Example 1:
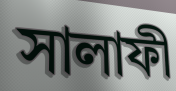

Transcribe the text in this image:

সালাফী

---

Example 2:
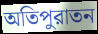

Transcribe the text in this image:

অতিপুরাতন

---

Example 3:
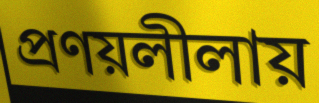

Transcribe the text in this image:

প্রণয়লীলায়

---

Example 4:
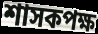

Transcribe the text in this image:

শাসকপক্ষ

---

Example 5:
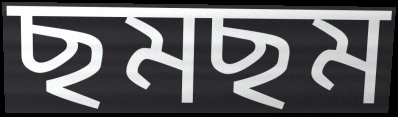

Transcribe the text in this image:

ছমছম